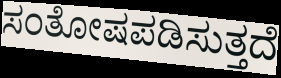
ಸಂತೋಷಪಡಿಸುತ್ತದೆ